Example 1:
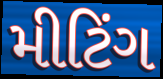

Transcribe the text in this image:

મીટિંગ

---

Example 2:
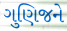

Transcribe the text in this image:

ગુણિજને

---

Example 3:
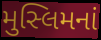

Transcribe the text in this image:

મુસ્લિમનાં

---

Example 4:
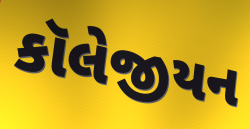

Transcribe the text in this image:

કૉલેજીયન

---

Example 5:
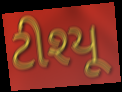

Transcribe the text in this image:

ટીશ્યૂ